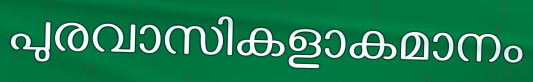
പുരവാസികളാകമാനം